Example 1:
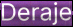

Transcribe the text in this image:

Deraje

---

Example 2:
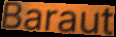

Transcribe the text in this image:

Baraut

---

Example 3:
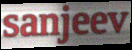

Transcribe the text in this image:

sanjeev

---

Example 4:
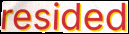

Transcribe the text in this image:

resided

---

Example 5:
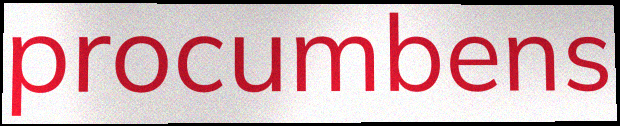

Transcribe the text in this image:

procumbens